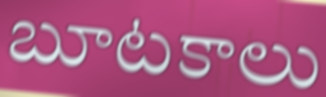
బూటకాలు